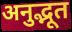
अनुद्भूत